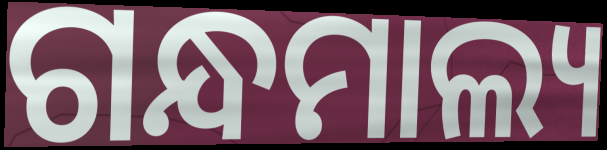
ଗନ୍ଧମାଲ୍ୟ